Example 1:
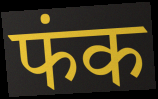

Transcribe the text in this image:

फंक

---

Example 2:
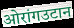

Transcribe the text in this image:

ओरांगउटान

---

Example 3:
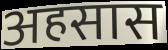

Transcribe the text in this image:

अहसास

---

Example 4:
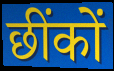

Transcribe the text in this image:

छींकों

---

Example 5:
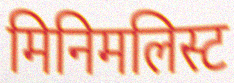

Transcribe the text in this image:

मिनिमलिस्ट